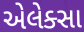
એલેક્સા